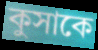
কুসাকে